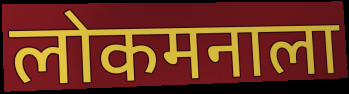
लोकमनाला